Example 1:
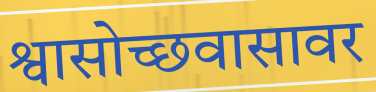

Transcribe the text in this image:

श्वासोच्छवासावर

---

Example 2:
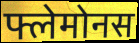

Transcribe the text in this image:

फ्लेमोनस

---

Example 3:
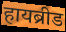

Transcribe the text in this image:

हायब्रीड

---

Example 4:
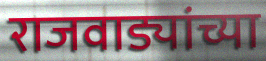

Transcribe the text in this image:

राजवाड्यांच्या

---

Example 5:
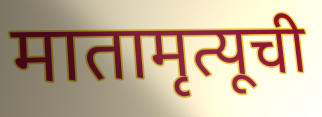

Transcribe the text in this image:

मातामृत्यूची